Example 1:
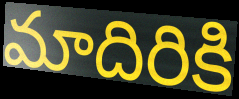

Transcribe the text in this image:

మాదిరికి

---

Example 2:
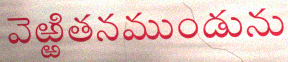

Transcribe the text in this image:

వెఱ్ఱితనముండును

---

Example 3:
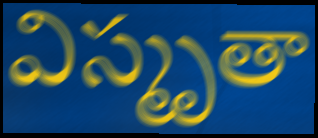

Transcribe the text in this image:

విస్మృతా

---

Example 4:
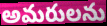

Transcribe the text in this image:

అమరులను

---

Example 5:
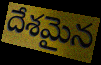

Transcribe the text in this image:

దేశమైన